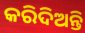
କରିଦିଅନ୍ତି